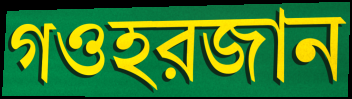
গওহরজান